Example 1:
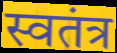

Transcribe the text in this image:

स्‍वतंत्र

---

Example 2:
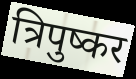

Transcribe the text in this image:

त्रिपुष्कर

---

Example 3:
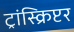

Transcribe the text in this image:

ट्रांस्क्रिप्टर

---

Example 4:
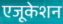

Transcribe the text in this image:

एजूकेशन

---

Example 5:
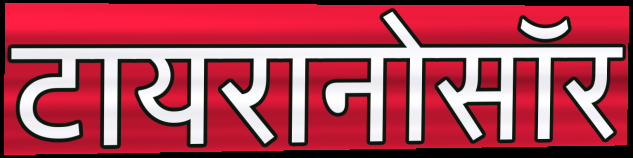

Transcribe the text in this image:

टायरानोसॉर